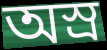
অস্র